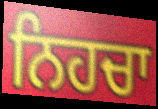
ਨਿਹਚਾ